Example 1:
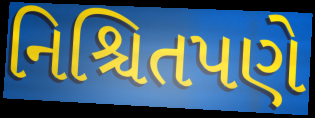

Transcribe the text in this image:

નિશ્ચિતપણે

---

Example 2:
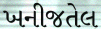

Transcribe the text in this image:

ખનીજતેલ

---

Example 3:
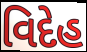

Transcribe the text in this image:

વિદેહ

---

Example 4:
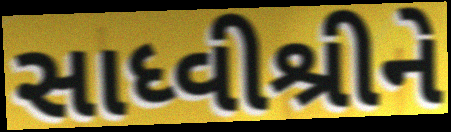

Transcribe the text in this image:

સાધ્વીશ્રીને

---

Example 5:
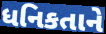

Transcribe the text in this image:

ધનિકતાને